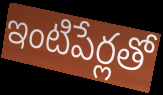
ఇంటిపేర్లతో